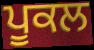
ਪੂਕਲ